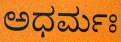
ಅಧರ್ಮಃ